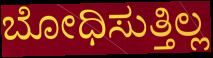
ಬೋಧಿಸುತ್ತಿಲ್ಲ